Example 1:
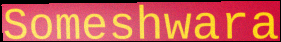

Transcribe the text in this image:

Someshwara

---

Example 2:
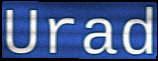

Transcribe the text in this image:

Urad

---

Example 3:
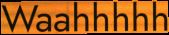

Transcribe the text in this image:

Waahhhhh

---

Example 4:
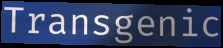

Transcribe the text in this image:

Transgenic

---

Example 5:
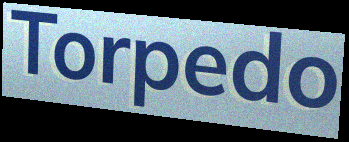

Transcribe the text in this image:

Torpedo